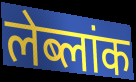
लेब्लांक